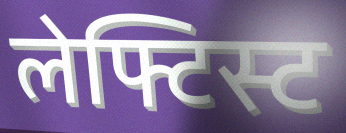
लेफ्टिस्ट